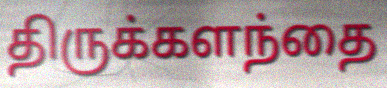
திருக்களந்தை